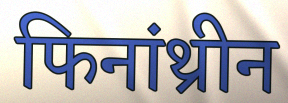
फिनांथ्रीन